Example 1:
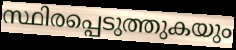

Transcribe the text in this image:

സ്ഥിരപ്പെടുത്തുകയും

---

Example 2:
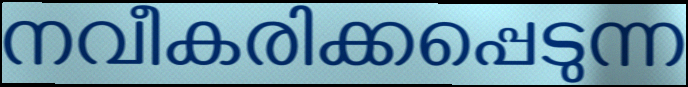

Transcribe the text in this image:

നവീകരിക്കപ്പെടുന്ന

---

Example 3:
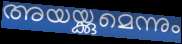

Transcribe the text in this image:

അയയ്ക്കുമെന്നും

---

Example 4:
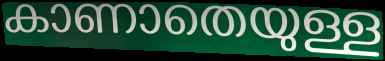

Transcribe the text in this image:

കാണാതെയുള്ള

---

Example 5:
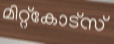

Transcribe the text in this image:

മിറ്റ്കോട്സ്